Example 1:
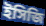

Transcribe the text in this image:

ইসিজি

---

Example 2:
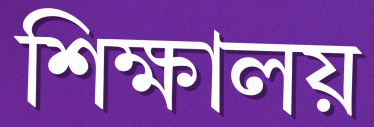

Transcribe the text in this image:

শিক্ষালয়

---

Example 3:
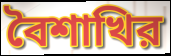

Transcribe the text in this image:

বৈশাখির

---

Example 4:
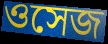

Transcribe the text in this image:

ওসেজ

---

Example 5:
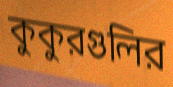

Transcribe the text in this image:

কুকুরগুলির